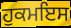
ਹੁਕਮਇਸ